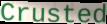
Crusted